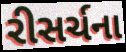
રીસર્ચના